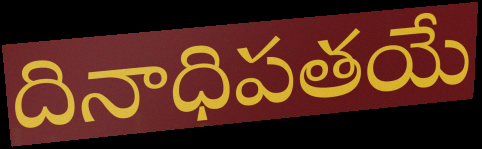
దినాధిపతయే